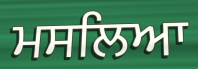
ਮਸਲਿਆ